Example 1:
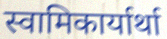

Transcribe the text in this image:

स्वामिकार्यार्था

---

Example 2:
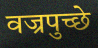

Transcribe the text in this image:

वज्रपुच्छे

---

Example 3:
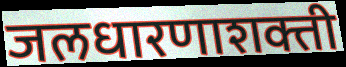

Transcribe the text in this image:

जलधारणाशक्ती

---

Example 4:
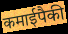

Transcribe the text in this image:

कमाईपैकी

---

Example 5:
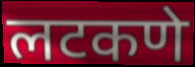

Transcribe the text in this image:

लटकणे